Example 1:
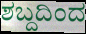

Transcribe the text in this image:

ಶಬ್ದದಿಂದ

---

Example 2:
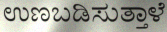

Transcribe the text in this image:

ಉಣಬಡಿಸುತ್ತಾಳೆ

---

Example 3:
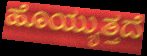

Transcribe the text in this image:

ಹೊಯ್ಯುತ್ತದೆ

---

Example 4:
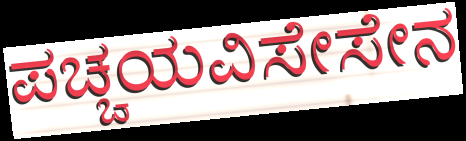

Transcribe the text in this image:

ಪಚ್ಚಯವಿಸೇಸೇನ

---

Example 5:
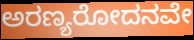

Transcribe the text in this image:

ಅರಣ್ಯರೋದನವೇ